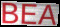
BEA